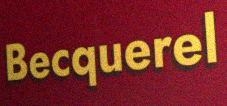
Becquerel